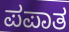
ಪಪಾತ